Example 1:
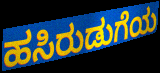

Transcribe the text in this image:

ಹಸಿರುಡುಗೆಯ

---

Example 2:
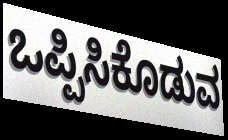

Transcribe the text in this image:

ಒಪ್ಪಿಸಿಕೊಡುವ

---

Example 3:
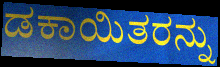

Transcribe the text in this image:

ಡಕಾಯಿತರನ್ನು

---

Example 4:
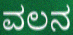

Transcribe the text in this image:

ವಲನ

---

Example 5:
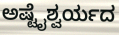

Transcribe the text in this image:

ಅಷ್ಟೈಶ್ವರ್ಯದ